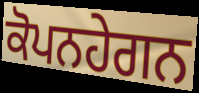
ਕੋਪਨਹੇਗਨ